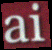
ai